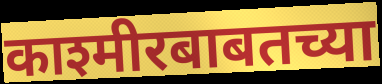
काश्मीरबाबतच्या